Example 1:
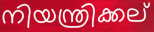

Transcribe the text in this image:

നിയന്ത്രിക്കല്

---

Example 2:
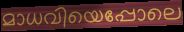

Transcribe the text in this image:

മാധവിയെപ്പോലെ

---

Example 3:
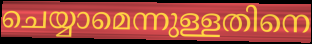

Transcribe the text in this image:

ചെയ്യാമെന്നുള്ളതിനെ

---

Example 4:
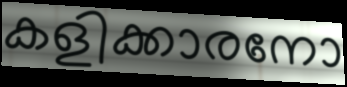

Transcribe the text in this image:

കളിക്കാരനോ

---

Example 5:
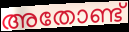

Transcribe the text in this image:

അതോണ്ട്